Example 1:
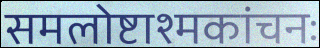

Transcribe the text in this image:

समलोष्टाश्मकांचनः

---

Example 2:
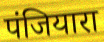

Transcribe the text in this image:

पंजियारा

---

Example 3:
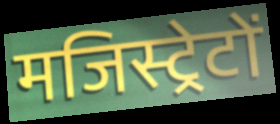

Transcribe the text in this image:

मजिस्ट्रेटों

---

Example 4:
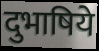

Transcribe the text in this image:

दुभाषिये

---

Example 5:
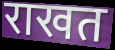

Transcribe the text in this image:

राखत